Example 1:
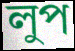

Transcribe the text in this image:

লুপ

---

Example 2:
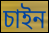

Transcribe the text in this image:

চাইন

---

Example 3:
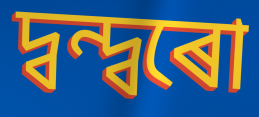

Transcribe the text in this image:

দ্বন্দ্বৰো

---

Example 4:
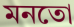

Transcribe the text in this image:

মনতো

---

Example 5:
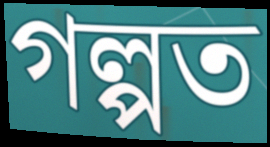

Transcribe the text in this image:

গল্পত